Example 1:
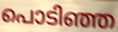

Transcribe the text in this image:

പൊടിഞ്ഞ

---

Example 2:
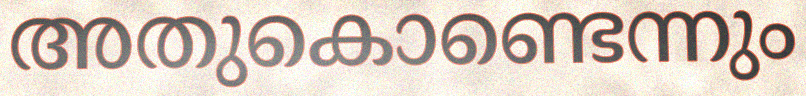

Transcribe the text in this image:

അതുകൊണ്ടെന്നും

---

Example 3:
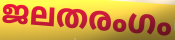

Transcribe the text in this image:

ജലതരംഗം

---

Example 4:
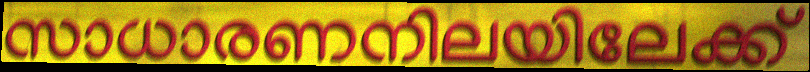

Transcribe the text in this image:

സാധാരണനിലയിലേക്ക്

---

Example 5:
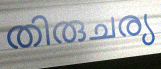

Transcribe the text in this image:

തിരുചര്യ